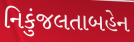
નિકુંજલતાબહેન